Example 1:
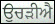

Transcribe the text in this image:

ਉਚੜੀਐ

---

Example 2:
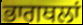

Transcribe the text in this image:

ਭਾਗਥਲਾਂ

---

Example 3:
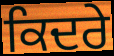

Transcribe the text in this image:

ਕਿਦਰੇ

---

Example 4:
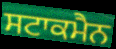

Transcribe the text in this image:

ਸਟਾਕਮੈਨ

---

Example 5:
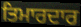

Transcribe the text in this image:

ਤਿਮਾਰਦਾਰ